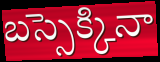
బస్సెక్కినా